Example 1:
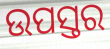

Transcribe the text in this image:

ଉପସ୍ତର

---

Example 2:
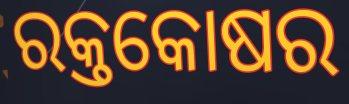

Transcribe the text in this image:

ରକ୍ତକୋଷର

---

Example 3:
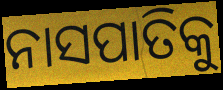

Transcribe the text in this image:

ନାସପାତିକୁ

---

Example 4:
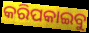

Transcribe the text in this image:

କରିପକାଇବୁ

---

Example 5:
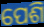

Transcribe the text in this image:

ପେଶି